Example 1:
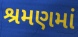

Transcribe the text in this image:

શ્રમણમાં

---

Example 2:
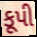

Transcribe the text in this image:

કૂપી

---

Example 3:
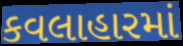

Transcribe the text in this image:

કવલાહારમાં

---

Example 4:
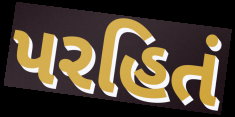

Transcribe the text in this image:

પરહિતં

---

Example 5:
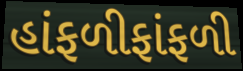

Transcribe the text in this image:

હાંફળીફાંફળી